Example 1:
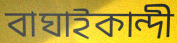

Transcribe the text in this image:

বাঘাইকান্দী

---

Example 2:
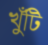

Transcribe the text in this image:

খুঁটি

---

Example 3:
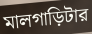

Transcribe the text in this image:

মালগাড়িটার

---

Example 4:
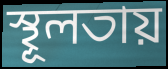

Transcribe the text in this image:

স্থূলতায়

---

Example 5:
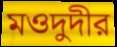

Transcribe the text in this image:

মওদুদীর